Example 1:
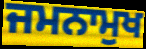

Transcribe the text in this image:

ਜਮਨਾਮੁਖ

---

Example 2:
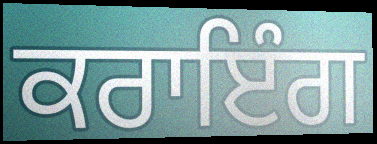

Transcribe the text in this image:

ਕਰਾਇੰਗ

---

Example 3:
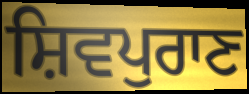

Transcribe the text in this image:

ਸ਼ਿਵਪੁਰਾਣ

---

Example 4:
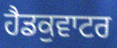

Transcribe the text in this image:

ਹੈਡਕੁਵਾਟਰ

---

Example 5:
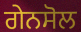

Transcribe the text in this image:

ਗੇਨਸੋਲ